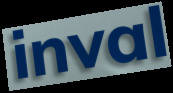
inval